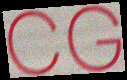
CG